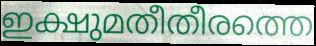
ഇക്ഷുമതീതീരത്തെ